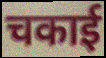
चकाई